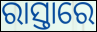
ରାସ୍ତାରେ